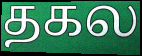
தகல